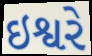
ઇશ્વરે